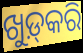
ଖୁଡ଼୍‍କରି